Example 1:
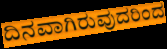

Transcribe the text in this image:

ದಿನವಾಗಿರುವುದರಿಂದ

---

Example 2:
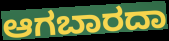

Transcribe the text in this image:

ಆಗಬಾರದಾ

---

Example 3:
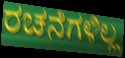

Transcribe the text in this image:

ರಚನೆಗಳಿಲ್ಲ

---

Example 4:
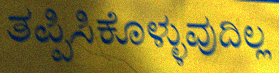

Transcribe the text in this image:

ತಪ್ಪಿಸಿಕೊಳ್ಳುವುದಿಲ್ಲ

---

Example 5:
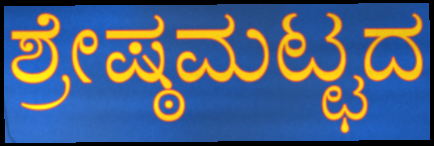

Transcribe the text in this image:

ಶ್ರೇಷ್ಠಮಟ್ಟದ